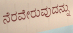
ನೆರವೇರುವುದನ್ನು